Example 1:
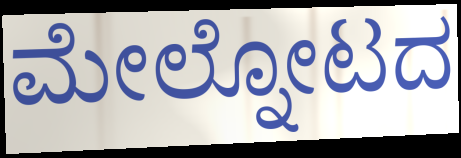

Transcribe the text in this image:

ಮೇಲ್ನೋಟದ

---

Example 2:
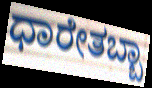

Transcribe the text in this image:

ಧಾರೇತಬ್ಬಾ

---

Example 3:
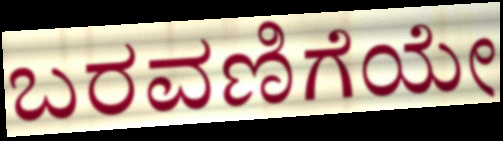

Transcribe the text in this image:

ಬರವಣಿಗೆಯೇ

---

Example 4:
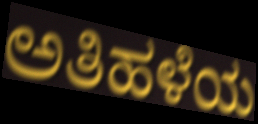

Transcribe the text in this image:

ಅತಿಹಳೆಯ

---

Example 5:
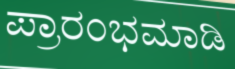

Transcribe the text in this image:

ಪ್ರಾರಂಭಮಾಡಿ